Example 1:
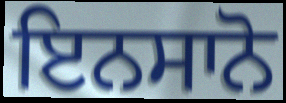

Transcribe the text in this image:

ਇਨਸਾਨੋ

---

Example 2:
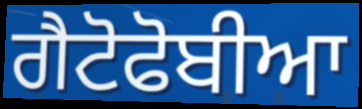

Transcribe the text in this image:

ਗੈਟੋਫੋਬੀਆ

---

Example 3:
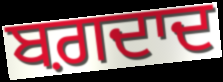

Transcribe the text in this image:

ਬ਼ਗਦਾਦ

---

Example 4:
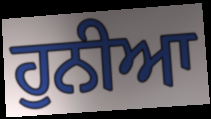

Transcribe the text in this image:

ਹੁਨੀਆ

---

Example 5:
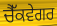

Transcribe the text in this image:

ਚੈੱਕਵੇਗਰ